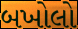
બખોલો